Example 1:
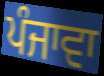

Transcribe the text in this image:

ਪੰਜਾਵਾ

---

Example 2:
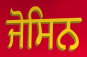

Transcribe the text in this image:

ਜੋਸਿਨ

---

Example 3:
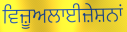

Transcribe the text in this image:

ਵਿਜ਼ੂਅਲਾਈਜ਼ੇਸ਼ਨਾਂ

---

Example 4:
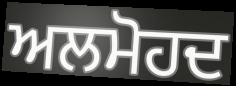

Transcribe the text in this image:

ਅਲਮੋਹਦ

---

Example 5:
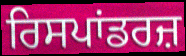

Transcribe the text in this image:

ਰਿਸਪਾਂਡਰਜ਼